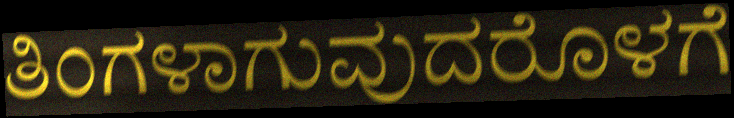
ತಿಂಗಳಾಗುವುದರೊಳಗೆ